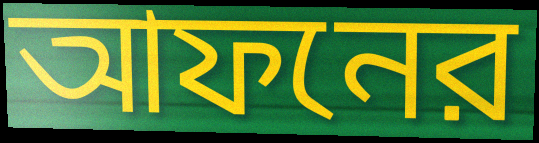
আফনের